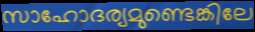
സാഹോദര്യമുണ്ടെങ്കിലേ